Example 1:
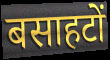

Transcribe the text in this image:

बसाहटों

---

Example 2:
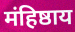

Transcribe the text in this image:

मंहिष्ठाय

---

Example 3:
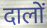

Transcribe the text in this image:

दालों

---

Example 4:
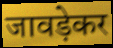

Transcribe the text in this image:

जावड़ेकर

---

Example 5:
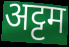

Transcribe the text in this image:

अट्टम